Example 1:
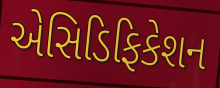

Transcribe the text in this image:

એસિડિફિકેશન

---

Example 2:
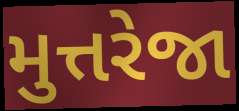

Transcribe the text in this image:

મુત્તરેજા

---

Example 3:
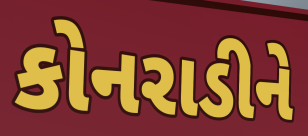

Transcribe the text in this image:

કોનરાડીને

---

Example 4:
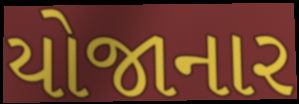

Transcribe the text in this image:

યોજાનાર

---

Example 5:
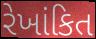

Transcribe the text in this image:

રેખાંકિત